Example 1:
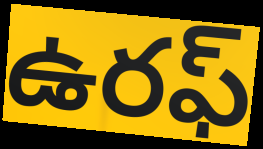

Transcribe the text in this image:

ఉరఫ్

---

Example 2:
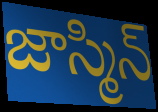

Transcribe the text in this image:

జాస్మిన్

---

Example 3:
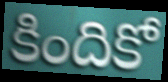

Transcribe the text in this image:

కిందికో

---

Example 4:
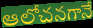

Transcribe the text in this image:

ఆలోచనగానే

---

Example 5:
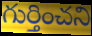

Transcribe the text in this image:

గుర్తించని